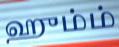
ஹும்ம்